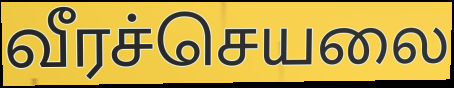
வீரச்செயலை